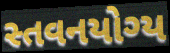
સ્તવનયોગ્ય